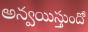
అన్వయిస్తుందో